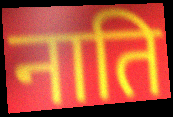
नाति